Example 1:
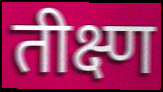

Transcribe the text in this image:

तीक्ष्ण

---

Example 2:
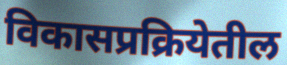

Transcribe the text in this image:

विकासप्रक्रियेतील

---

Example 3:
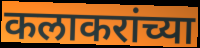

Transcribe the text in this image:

कलाकरांच्या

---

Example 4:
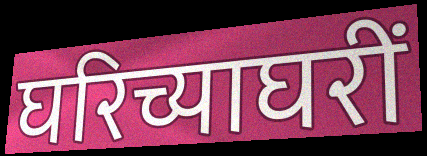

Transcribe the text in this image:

घरिच्याघरीं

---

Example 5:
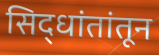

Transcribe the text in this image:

सिद्धांतांतून